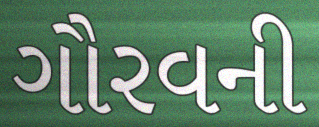
ગૌરવની